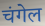
चंगेल